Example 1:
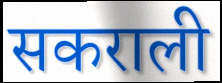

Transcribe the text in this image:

सकराली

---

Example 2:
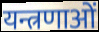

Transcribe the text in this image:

यन्त्रणाओं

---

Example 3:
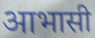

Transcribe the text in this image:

आभासी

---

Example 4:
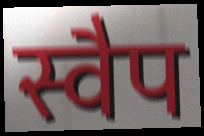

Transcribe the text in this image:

स्वैप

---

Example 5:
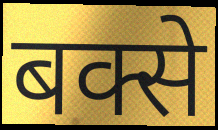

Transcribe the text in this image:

बक्से